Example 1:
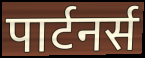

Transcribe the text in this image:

पार्टनर्स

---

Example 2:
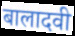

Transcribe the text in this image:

बालादवी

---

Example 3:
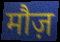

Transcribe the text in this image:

मौज़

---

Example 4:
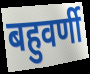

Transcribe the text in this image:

बहुवर्णी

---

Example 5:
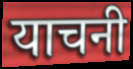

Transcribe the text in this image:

याचनी